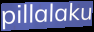
pillalaku